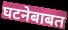
घटनेबाबत